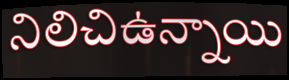
నిలిచిఉన్నాయి